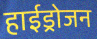
हाईड्रोजन